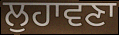
ਲੁਹਾਵਣਾ